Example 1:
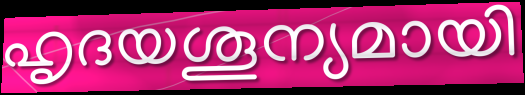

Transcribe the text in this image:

ഹൃദയശൂന്യമായി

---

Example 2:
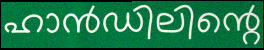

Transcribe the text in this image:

ഹാൻഡിലിന്റെ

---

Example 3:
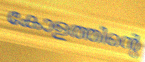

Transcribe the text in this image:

കോളത്തിന്റെ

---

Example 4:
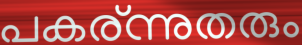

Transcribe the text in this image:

പകര്ന്നുതരും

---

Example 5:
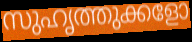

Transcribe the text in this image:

സുഹൃത്തുക്കളോ